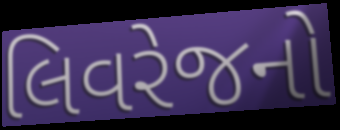
લિવરેજનો